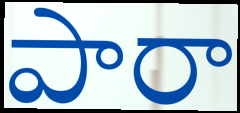
పారా